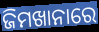
ଜିମଖାନାରେ